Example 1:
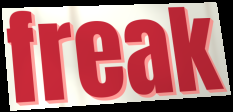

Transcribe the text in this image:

freak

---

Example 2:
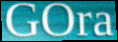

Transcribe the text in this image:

GOra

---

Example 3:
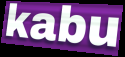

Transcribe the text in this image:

kabu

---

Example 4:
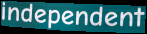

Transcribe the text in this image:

independent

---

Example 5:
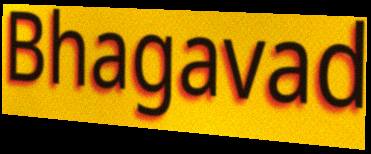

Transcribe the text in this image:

Bhagavad